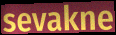
sevakne